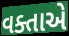
વક્તાએ